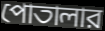
পোতালার